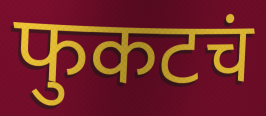
फुकटचं